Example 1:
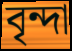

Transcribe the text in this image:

বৃন্দা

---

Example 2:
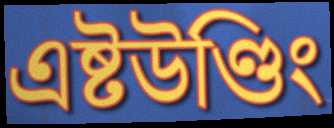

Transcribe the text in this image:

এষ্টউণ্ডিং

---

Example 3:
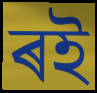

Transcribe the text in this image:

ৰই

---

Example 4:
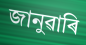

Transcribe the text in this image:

জানুৱাৰি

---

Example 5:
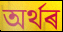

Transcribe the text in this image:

অৰ্থৰ